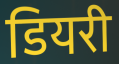
डियरी